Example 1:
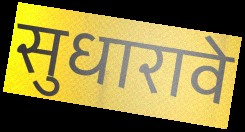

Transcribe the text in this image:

सुधारावे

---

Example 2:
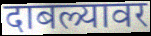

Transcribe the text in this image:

दाबल्यावर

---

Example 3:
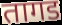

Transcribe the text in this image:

तागड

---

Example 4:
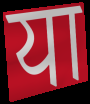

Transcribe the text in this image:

या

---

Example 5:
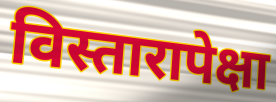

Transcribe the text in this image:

विस्तारापेक्षा